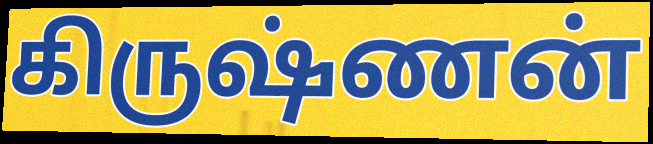
கிருஷ்ணன்